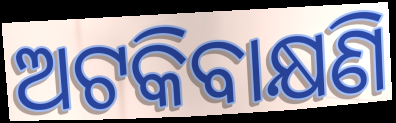
ଅଟକିବାକ୍ଷଣି